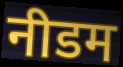
नीडम